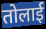
तोलाई